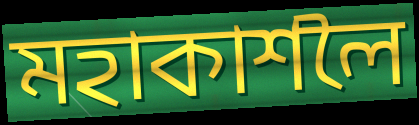
মহাকাশলৈ